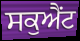
ਸਕੁਐਂਟ